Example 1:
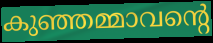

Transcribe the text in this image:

കുഞ്ഞമ്മാവന്റെ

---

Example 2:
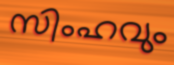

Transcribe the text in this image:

സിംഹവും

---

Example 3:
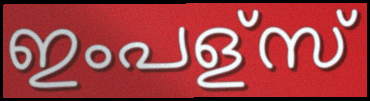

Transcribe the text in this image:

ഇംപള്സ്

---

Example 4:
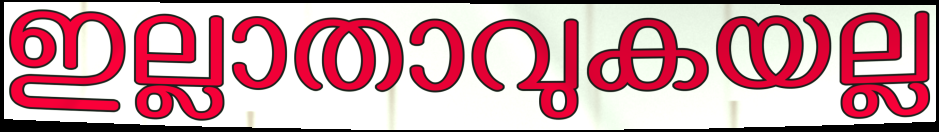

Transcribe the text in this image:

ഇല്ലാതാവുകയല്ല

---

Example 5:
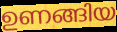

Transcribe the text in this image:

ഉണങ്ങിയ